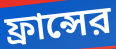
ফ্রান্সের